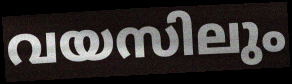
വയസിലും